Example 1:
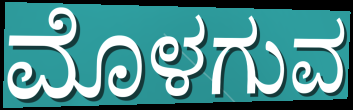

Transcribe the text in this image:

ಮೊಳಗುವ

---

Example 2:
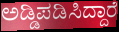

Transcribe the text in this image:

ಅಡ್ಡಿಪಡಿಸಿದ್ದಾರೆ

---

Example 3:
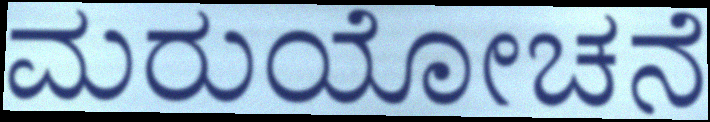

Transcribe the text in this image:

ಮರುಯೋಚನೆ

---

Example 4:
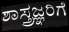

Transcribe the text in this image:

ಶಾಸ್ತ್ರಜ್ಞರಿಗೆ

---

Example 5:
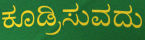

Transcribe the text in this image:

ಕೂಡ್ರಿಸುವದು